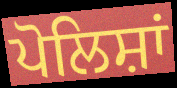
ਪੋਲਿਸ਼ਾਂ